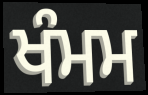
ਖੰਮਮ